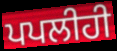
ਪਪਲੀਹੀ